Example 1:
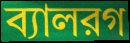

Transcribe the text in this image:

ব্যালরগ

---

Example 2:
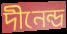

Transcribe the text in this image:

দীনেন্দ্র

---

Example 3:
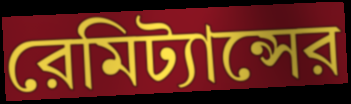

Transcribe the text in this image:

রেমিট্যান্সের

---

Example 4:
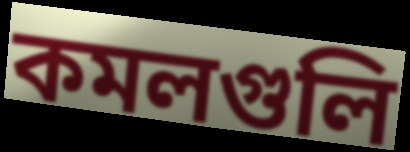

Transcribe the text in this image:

কমলগুলি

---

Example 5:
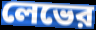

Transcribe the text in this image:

লেভের